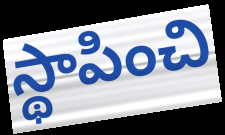
స్థాపించి